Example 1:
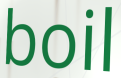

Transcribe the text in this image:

boil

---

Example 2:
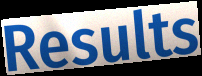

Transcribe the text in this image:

Results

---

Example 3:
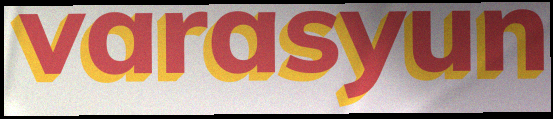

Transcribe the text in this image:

varasyun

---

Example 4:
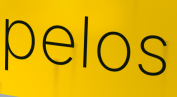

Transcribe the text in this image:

pelos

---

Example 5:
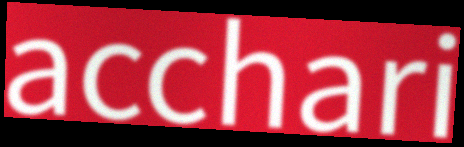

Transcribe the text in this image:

acchari